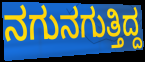
ನಗುನಗುತ್ತಿದ್ದ